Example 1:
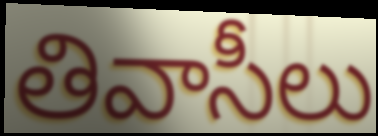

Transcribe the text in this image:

తివాసీలు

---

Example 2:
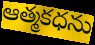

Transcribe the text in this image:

ఆత్మకధను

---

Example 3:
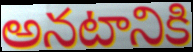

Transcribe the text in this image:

అనటానికి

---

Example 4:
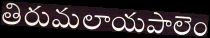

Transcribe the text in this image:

తిరుమలాయపాలెం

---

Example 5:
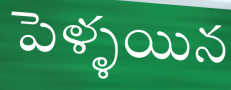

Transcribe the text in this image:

పెళ్ళయిన